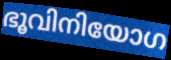
ഭൂവിനിയോഗ